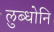
लुब्धोनि